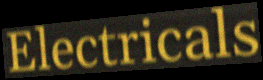
Electricals